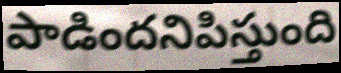
పాడిందనిపిస్తుంది